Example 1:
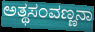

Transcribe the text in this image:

ಅತ್ಥಸಂವಣ್ಣನಾ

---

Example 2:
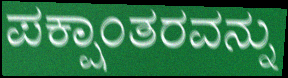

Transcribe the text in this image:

ಪಕ್ಷಾಂತರವನ್ನು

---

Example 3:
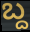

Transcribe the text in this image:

ಬ್ದ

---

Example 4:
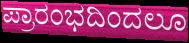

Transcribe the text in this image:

ಪ್ರಾರಂಭದಿಂದಲೂ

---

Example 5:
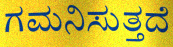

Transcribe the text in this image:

ಗಮನಿಸುತ್ತದೆ